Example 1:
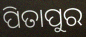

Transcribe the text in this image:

ପିତାପୁର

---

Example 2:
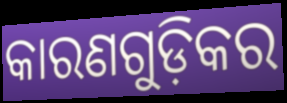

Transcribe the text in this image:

କାରଣଗୁଡ଼ିକର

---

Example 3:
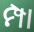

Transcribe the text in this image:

ମ୍ପା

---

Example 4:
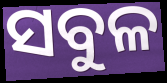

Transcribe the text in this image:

ସବୁଳ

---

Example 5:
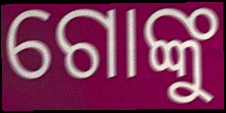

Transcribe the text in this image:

ଗୋଙ୍କୁ